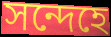
সন্দেহে